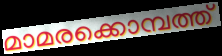
മാമരക്കൊമ്പത്ത്